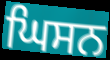
ਘਿਸਨ